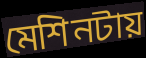
মেশিনটায়